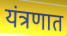
यंत्रणात